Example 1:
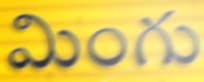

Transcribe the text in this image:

మింగు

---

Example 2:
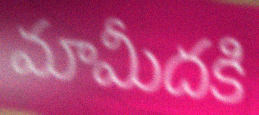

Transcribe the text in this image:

మామీదకి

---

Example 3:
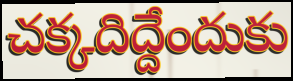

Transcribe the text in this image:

చక్కదిద్దేందుకు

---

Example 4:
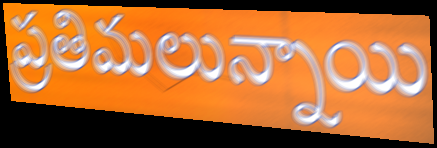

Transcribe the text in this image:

ప్రతిమలున్నాయి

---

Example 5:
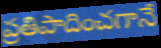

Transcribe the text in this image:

ప్రతిపాదించగానే